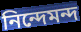
নিন্দেমন্দ